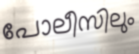
പോലീസിലും